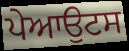
ਪੇਆਉਟਸ